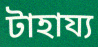
টাহায্য